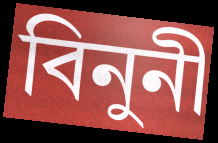
বিনুনী